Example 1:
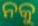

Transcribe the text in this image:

ନକୁ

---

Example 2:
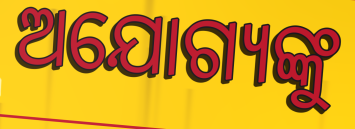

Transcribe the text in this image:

ଅଯୋଗ୍ୟଙ୍କୁ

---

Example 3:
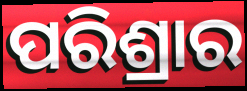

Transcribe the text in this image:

ପରିଶ୍ରାର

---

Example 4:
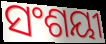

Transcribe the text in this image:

ସଂଶୟୀ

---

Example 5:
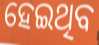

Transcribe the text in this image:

ହେଇଥିବ